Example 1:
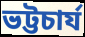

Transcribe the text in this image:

ভট্টচাৰ্য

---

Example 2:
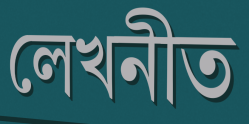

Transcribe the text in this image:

লেখনীত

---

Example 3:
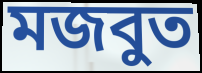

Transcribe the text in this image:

মজবুত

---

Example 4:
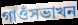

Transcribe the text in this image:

গাওঁসভাখন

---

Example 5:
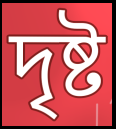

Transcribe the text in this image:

দৃষ্ট